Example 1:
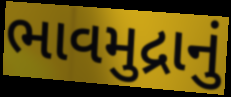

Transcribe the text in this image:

ભાવમુદ્રાનું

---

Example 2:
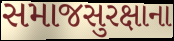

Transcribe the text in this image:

સમાજસુરક્ષાના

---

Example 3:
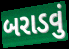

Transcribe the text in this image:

બરાડવું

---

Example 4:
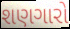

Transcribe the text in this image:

શણગારો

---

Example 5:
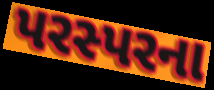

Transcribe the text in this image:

પરસ્પરના